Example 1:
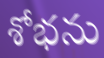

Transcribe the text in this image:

శోభను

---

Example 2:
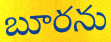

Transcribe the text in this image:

బూరను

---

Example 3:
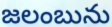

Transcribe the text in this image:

జలంబును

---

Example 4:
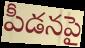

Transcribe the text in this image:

పీడనపై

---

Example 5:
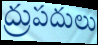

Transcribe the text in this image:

ద్రుపదులు